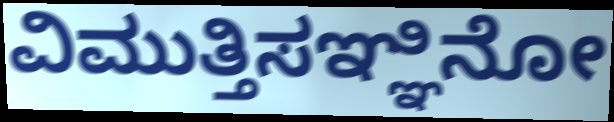
ವಿಮುತ್ತಿಸಞ್ಞಿನೋ